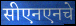
सीएनएनचे